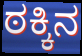
ಠಕ್ಕಿನ